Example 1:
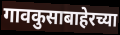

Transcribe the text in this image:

गावकुसाबाहेरच्या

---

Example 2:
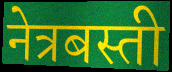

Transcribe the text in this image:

नेत्रबस्ती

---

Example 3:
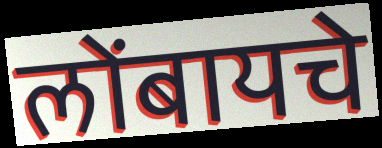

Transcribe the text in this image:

लोंबायचे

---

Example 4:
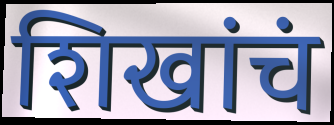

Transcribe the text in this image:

शिखांचं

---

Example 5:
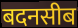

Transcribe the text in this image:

बदनसीब